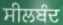
ਸੀਲਬੰਦ